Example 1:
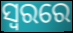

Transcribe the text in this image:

ସ୍ୱରରେ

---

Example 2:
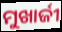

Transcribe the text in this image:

ମୁଖାର୍ଜୀ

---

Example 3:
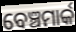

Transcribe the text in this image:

ବେଞ୍ଚମାର୍କ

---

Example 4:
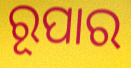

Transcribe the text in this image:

ରୂପାର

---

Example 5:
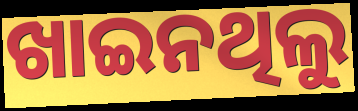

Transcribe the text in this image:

ଖାଇନଥିଲୁ